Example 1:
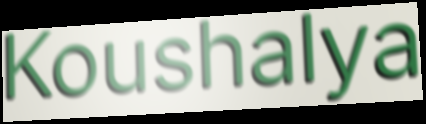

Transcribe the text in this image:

Koushalya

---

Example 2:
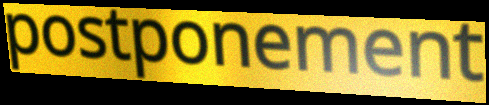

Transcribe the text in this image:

postponement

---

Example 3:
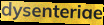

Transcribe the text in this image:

dysenteriae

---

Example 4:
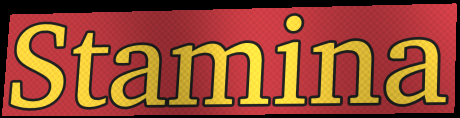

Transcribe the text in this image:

Stamina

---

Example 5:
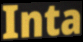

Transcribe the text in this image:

Inta